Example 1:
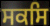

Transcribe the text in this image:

ਸਕਸਿ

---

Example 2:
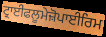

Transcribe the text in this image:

ਟ੍ਰਾਈਫਲੂਮੇਜ਼ੋਪਾਈਰਿਮ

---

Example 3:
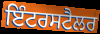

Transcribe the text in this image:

ਇੰਟਰਸਟੈਲਰ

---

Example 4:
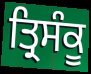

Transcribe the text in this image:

ਤ੍ਰਿਸੰਕੂ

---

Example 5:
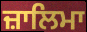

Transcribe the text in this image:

ਜ਼ਾਲਿਮਾ